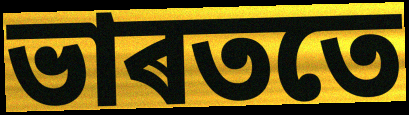
ভাৰততে